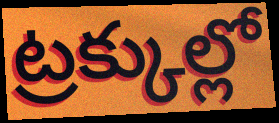
ట్రక్కుల్లో